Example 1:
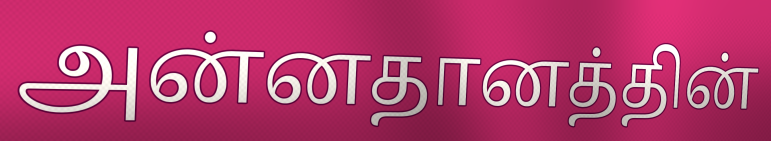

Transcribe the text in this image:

அன்னதானத்தின்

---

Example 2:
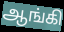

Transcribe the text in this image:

ஆங்கி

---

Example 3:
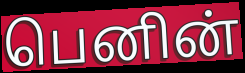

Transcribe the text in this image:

பெனின்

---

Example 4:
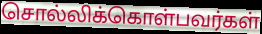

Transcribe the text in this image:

சொல்லிக்கொள்பவர்கள்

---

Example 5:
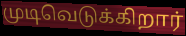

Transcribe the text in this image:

முடிவெடுக்கிறார்